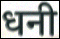
धनी